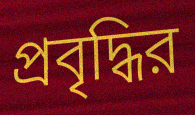
প্রবৃদ্ধির